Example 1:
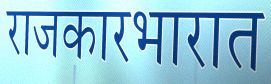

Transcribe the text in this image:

राजकारभारात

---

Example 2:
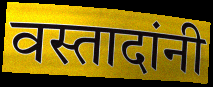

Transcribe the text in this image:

वस्तादांनी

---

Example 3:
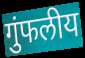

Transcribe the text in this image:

गुंफलीय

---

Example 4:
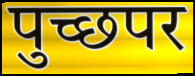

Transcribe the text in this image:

पुच्छपर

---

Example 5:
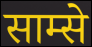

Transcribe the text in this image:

साम्से